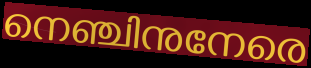
നെഞ്ചിനുനേരെ